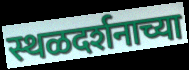
स्थळदर्शनाच्या